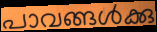
പാവങ്ങൾക്കു